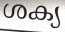
ശക്യ